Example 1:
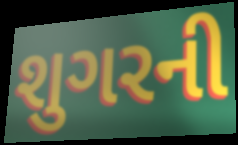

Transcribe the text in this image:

શુગરની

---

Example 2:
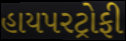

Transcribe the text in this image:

હાયપરટ્રોફી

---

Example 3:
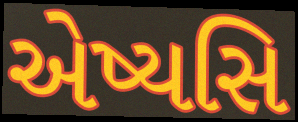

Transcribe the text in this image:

એષ્યસિ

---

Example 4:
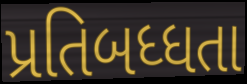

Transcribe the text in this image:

પ્રતિબધ્ધતા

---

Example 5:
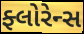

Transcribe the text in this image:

ફ્લોરેન્સ